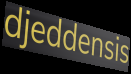
djeddensis